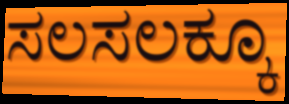
ಸಲಸಲಕ್ಕೂ